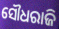
ସୌଧରାଜି